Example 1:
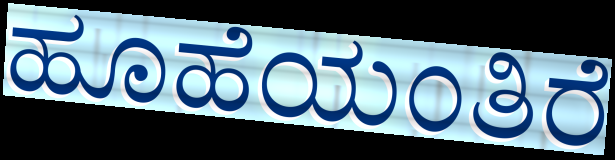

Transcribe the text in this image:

ಹೂಹೆಯಂತಿರೆ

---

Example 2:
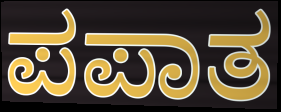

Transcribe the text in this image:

ಪಪಾತ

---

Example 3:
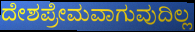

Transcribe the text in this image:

ದೇಶಪ್ರೇಮವಾಗುವುದಿಲ್ಲ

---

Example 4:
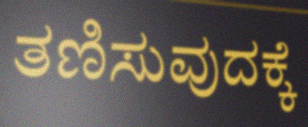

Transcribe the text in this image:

ತಣಿಸುವುದಕ್ಕೆ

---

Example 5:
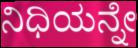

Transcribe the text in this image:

ನಿಧಿಯನ್ನೇ